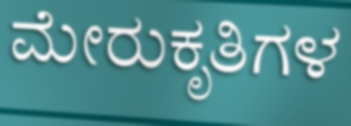
ಮೇರುಕೃತಿಗಳ